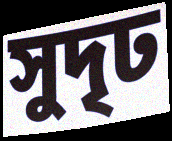
সুদৃঢ